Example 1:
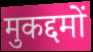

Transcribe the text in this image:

मुकद्दमों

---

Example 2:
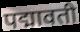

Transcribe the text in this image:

पद्मावती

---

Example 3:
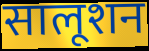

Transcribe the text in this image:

सालूशन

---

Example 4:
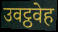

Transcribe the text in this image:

उवट्ठवेह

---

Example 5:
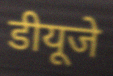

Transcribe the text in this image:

डीयूजे